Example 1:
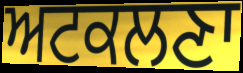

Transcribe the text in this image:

ਅਟਕਲਣਾ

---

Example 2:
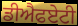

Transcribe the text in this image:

ਡੀਐਫਏਟੀ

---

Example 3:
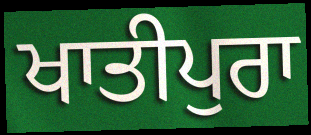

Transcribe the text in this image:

ਖਾਤੀਪੁਰਾ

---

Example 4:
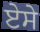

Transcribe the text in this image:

ਏਸੇ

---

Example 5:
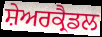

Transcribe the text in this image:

ਸ਼ੇਅਰਕ੍ਰੈਡਲ